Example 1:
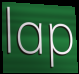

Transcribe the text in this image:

lap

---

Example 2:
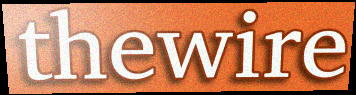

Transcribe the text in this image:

thewire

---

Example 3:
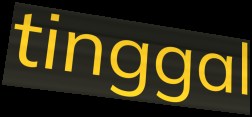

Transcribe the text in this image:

tinggal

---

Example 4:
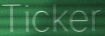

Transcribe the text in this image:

Ticker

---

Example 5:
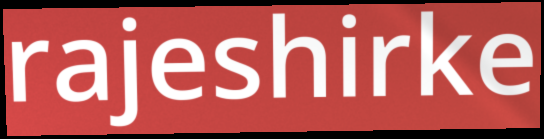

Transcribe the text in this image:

rajeshirke